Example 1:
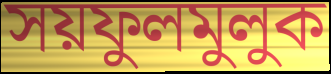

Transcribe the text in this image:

সয়ফুলমুলুক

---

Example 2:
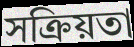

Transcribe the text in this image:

সক্রিয়তা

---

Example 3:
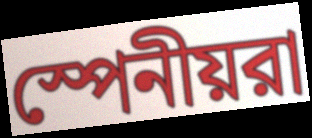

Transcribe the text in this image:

স্পেনীয়রা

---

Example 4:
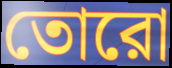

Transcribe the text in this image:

তোরো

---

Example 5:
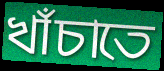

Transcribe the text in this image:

খাঁচাতে